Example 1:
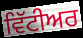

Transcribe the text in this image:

ਵਿੱਟੀਅਰ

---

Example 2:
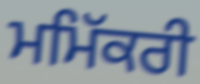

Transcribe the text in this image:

ਮਮਿੱਕਰੀ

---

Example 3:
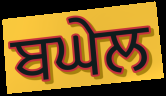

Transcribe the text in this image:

ਬਘੇਲ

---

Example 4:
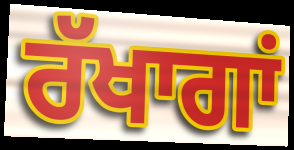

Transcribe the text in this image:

ਰੱਖਾਗਾਂ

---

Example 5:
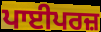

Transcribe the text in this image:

ਪਾਈਪਰਜ਼